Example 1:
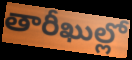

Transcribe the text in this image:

తారీఖుల్లో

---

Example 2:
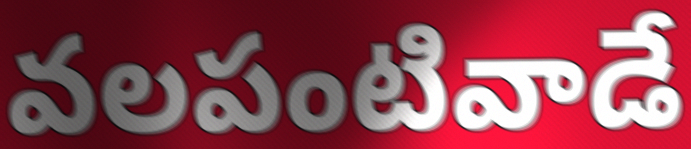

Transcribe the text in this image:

వలపంటివాడే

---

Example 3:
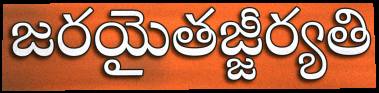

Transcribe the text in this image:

జరయైతజ్జీర్యతి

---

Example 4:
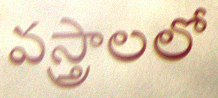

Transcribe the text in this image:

వస్త్రాలలో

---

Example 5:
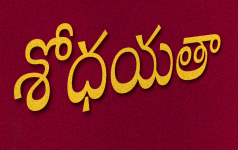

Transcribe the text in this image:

శోధయతా